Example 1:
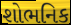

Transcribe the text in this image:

શોભનિક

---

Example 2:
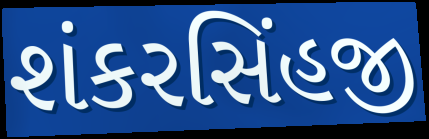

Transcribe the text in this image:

શંકરસિંહજી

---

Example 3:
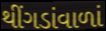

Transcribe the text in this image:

થીંગડાંવાળાં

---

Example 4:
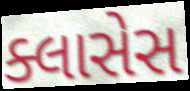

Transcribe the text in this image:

ક્લાસેસ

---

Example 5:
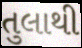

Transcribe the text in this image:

તુલાથી